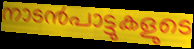
നാടൻപാട്ടുകളുടെ